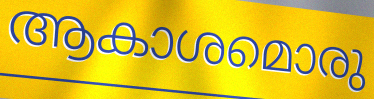
ആകാശമൊരു